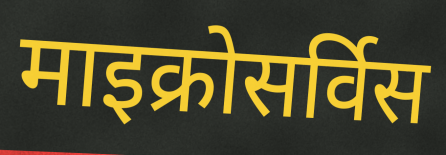
माइक्रोसर्विस